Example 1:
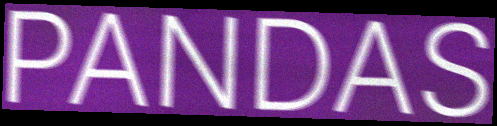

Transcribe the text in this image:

PANDAS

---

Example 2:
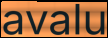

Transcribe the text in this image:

avalu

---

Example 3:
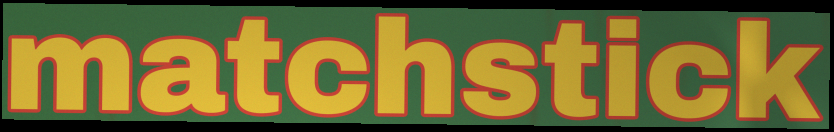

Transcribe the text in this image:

matchstick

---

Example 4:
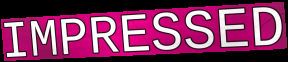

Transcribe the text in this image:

IMPRESSED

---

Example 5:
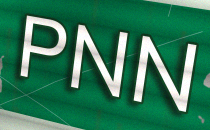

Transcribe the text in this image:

PNN